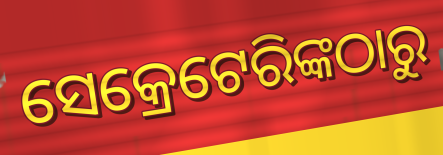
ସେକ୍ରେଟେରିଙ୍କଠାରୁ